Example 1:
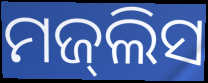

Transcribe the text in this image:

ମଜ୍‌ଲିସ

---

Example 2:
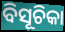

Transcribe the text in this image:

ବିସୂଚିକା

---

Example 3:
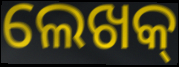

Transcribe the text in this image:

ଲେଖକ୍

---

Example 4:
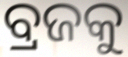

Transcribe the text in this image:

ବ୍ରଜକୁ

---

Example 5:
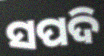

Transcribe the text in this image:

ସପଦି